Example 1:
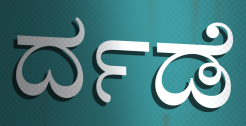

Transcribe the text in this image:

ರ್ದಡೆ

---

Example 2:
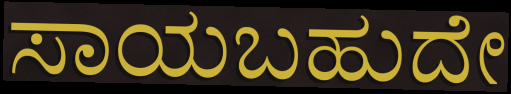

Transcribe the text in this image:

ಸಾಯಬಹುದೇ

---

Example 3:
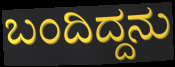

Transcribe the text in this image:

ಬಂದಿದ್ದನು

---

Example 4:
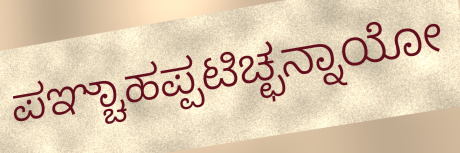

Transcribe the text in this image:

ಪಞ್ಚಾಹಪ್ಪಟಿಚ್ಛನ್ನಾಯೋ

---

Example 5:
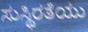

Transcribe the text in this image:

ಸುಸ್ಥಿರತೆಯು